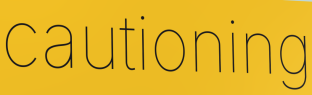
cautioning